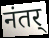
नंतर्